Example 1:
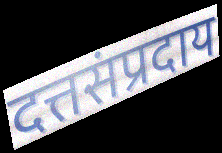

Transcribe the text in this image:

दत्तसंप्रदाय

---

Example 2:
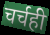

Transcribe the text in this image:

चर्चही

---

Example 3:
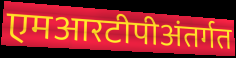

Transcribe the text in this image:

एमआरटीपीअंतर्गत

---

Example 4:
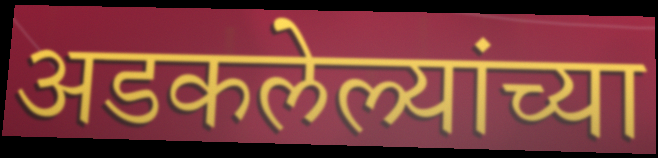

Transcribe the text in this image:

अडकलेल्यांच्या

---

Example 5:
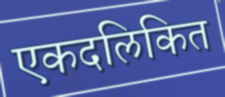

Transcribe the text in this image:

एकदलिकित